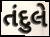
તંદુલે